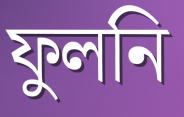
ফুলনি